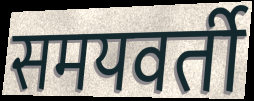
समयवर्ती